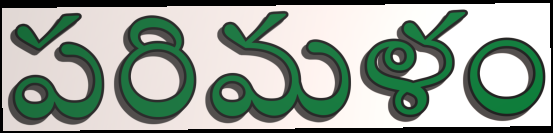
పరిమళం